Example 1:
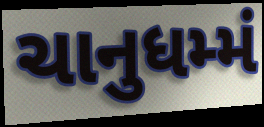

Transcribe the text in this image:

ચાનુધમ્મં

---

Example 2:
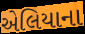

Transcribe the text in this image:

એલિયાના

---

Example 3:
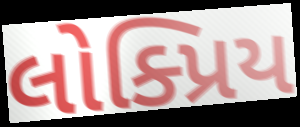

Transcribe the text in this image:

લોક્પ્રિય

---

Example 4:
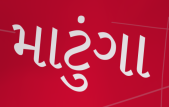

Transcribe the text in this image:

માટુંગા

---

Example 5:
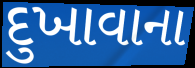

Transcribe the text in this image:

દુખાવાના